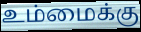
உம்மைக்கு